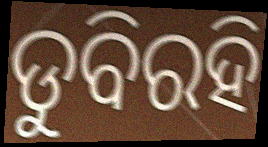
ଡୁବିରହି